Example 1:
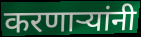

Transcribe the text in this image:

करणार्‍यांनी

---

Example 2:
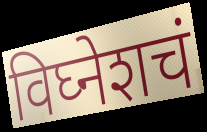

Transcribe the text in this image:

विघ्नेशचं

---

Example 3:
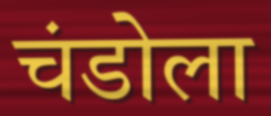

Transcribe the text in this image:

चंडोला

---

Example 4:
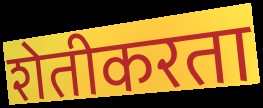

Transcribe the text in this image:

शेतीकरता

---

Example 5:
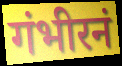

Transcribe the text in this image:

गंभीरनं